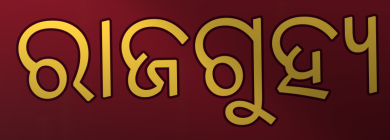
ରାଜଗୁହ୍ୟ